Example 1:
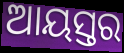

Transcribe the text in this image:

ଆୟସ୍ତର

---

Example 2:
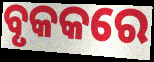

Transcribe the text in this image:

ବୃକକରେ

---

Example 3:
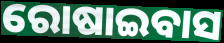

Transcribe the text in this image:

ରୋଷାଇବାସ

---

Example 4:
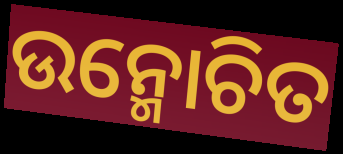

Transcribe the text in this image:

ଉନ୍ମୋଚିତ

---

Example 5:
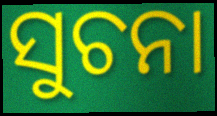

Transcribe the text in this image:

ସୁଚନା